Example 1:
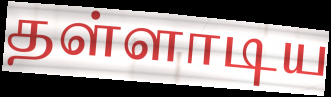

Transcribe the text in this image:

தள்ளாடிய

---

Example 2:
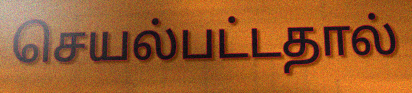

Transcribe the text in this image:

செயல்பட்டதால்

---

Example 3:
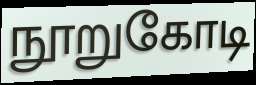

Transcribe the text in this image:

நூறுகோடி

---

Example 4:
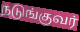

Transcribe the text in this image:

நடுங்குவர்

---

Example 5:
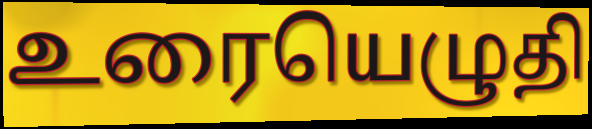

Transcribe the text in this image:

உரையெழுதி